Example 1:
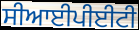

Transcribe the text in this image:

ਸੀਆਈਪੀਈਟੀ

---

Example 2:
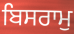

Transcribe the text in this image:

ਬਿਸਰਾਮੁ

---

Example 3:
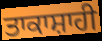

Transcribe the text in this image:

ਤਾਕਾਸ਼ਾਹੀ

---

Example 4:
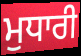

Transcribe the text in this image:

ਮੁਧਾਰੀ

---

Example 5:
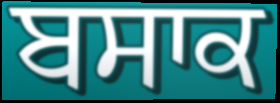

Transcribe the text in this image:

ਬਸਾਕ